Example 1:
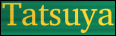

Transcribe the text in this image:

Tatsuya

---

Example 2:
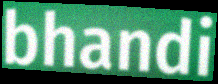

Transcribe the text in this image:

bhandi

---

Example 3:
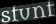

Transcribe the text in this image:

stunt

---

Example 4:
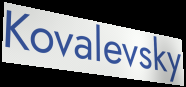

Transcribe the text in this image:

Kovalevsky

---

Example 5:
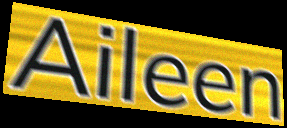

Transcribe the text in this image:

Aileen